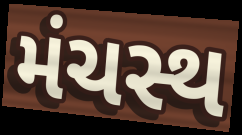
મંચસ્થ